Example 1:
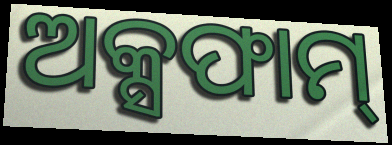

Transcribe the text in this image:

ଅକ୍ସଫାମ୍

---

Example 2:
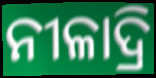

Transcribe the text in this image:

ନୀଳାଦ୍ରି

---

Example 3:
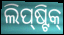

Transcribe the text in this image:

ଲିପ୍‍ଷ୍ଟିକ୍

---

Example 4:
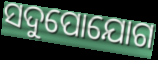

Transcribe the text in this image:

ସଦୁପୋଯୋଗ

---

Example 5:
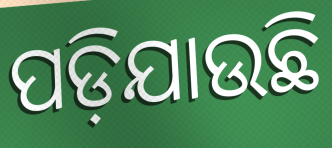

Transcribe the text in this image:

ପଡ଼ିଯାଉଛି